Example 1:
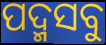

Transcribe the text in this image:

ପଦ୍ମସବୁ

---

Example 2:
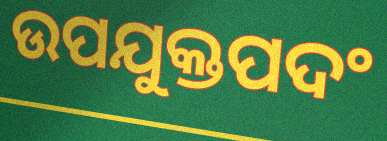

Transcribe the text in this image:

ଉପଯୁକ୍ତପଦଂ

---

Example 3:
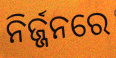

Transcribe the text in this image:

ନିର୍ଜ୍ଜନରେ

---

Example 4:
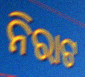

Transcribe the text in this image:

ନିରାଟ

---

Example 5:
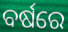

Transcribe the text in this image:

ବର୍ଷରେ